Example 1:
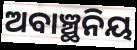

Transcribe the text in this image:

ଅବାଞ୍ଛନିୟ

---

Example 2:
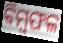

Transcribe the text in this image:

ବିମ୍ୱଫଳ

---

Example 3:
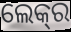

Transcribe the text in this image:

ଲେକ୍‍ର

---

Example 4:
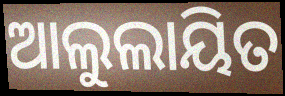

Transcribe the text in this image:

ଆଲୁଲାୟିତ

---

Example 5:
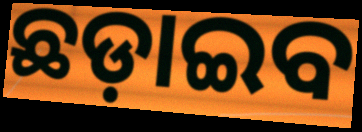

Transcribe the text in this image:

ଛଡ଼ାଇବ